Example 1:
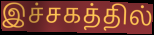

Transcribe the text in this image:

இச்சகத்தில்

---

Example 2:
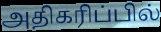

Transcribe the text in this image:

அதிகரிப்பில்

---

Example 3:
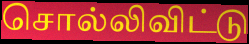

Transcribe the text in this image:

சொல்லிவிட்டு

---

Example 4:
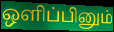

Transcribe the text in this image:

ஒளிப்பினும்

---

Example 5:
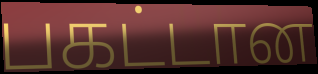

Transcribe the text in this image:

பகட்டான